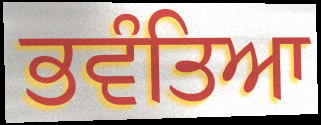
ਭਵੰਤਿਆ